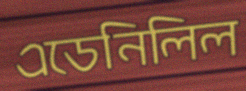
এডেনিলিল